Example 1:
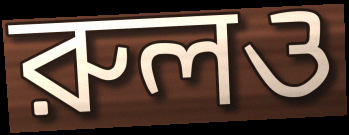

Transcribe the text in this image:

রুলও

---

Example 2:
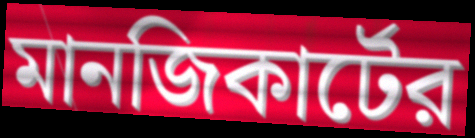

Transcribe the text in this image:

মানজিকার্টের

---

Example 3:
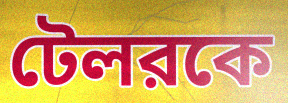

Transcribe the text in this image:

টেলরকে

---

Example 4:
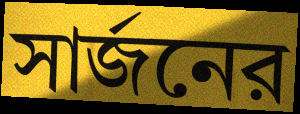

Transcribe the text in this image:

সার্জনের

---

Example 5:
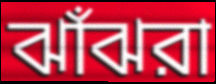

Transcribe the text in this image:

ঝাঁঝরা